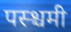
पस्श्चमी